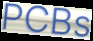
PCBs